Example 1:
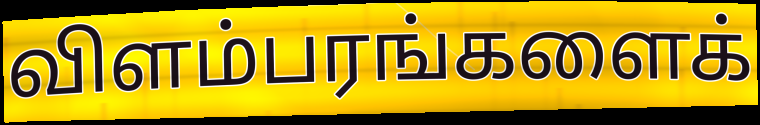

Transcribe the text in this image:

விளம்பரங்களைக்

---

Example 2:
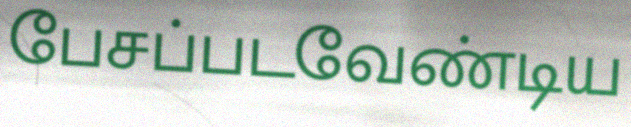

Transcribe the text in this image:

பேசப்படவேண்டிய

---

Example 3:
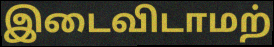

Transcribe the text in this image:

இடைவிடாமற்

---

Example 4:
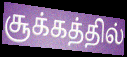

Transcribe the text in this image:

சூக்கத்தில்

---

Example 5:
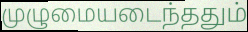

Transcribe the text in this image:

முழுமையடைந்ததும்